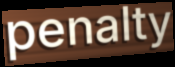
penalty